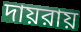
দায়রায়